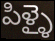
పిళ్ళై